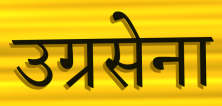
उग्रसेना